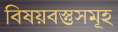
বিষয়বস্তুসমূহ